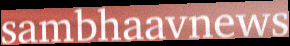
sambhaavnews